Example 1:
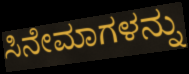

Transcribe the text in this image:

ಸಿನೇಮಾಗಳನ್ನು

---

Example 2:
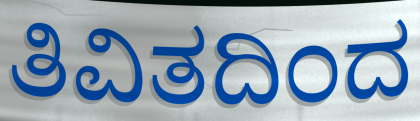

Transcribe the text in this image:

ತಿವಿತದಿಂದ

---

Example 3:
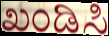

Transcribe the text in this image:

ಖಂಡಿಸಿ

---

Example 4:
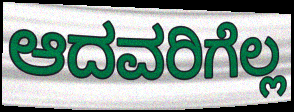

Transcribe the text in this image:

ಆದವರಿಗೆಲ್ಲ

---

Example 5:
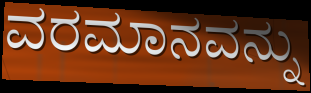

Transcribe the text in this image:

ವರಮಾನವನ್ನು